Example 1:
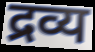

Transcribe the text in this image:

द्रव्य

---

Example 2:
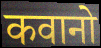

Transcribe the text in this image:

कवानो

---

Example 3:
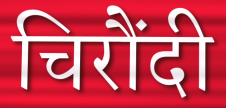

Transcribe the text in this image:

चिरौंदी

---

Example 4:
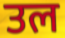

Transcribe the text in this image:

उल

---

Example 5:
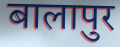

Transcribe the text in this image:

बालापुर